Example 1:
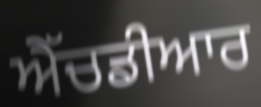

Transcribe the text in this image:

ਐੱਚਡੀਆਰ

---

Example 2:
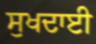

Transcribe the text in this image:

ਸੁਖਦਾਈ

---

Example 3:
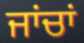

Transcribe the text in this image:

ਜਾਂਚਾਂ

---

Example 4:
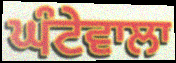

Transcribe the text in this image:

ਘੰਟੇਵਾਲਾ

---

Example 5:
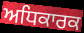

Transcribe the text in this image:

ਅਧਿਕਾਰਕ